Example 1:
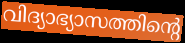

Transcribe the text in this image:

വിദ്യാഭ്യാസത്തിന്റെ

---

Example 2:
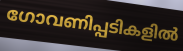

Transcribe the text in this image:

ഗോവണിപ്പടികളിൽ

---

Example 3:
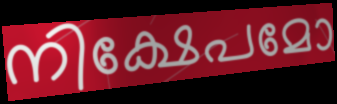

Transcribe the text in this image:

നിക്ഷേപമോ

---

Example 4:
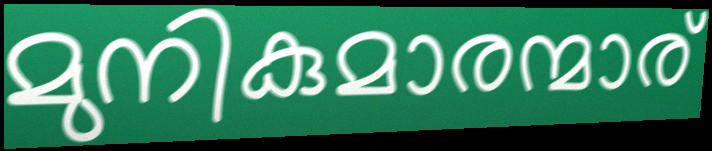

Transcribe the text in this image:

മുനികുമാരന്മാര്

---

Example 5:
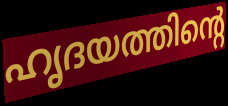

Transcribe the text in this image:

ഹൃദയത്തിന്റെ